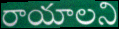
రాయాలని